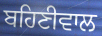
ਬਹਿਣੀਵਾਲ